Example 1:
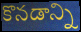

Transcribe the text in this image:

కొనడాన్ని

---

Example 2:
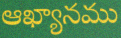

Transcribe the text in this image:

ఆఖ్యానము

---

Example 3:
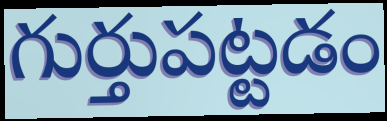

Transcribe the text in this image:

గుర్తుపట్టడం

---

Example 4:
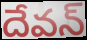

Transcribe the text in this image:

దేవన్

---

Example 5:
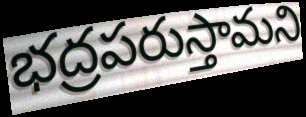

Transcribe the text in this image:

భద్రపరుస్తామని